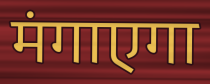
मंगाएगा